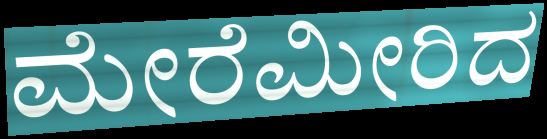
ಮೇರೆಮೀರಿದ